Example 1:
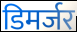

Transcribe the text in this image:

डिमर्जर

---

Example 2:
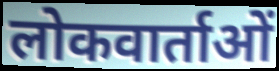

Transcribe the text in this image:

लोकवार्ताओं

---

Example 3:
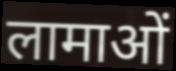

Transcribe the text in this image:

लामाओं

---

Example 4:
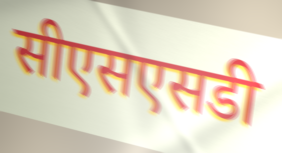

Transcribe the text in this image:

सीएसएसडी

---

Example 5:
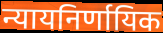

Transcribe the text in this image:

न्यायनिर्णायिक